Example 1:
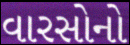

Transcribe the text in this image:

વારસોનો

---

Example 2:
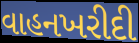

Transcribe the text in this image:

વાહનખરીદી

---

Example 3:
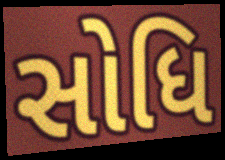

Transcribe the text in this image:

સોધિ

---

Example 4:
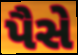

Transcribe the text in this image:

પૈસે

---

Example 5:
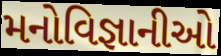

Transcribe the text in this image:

મનોવિજ્ઞાનીઓ